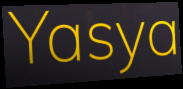
Yasya